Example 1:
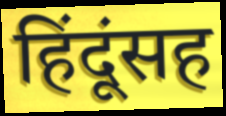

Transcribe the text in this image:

हिंदूंसह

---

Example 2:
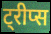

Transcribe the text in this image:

ट्रीप्स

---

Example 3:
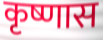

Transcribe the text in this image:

कृष्णास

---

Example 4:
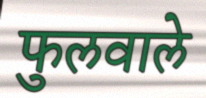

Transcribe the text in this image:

फुलवाले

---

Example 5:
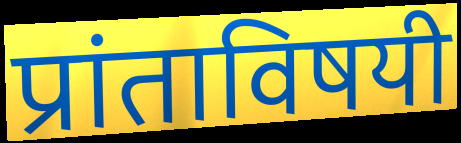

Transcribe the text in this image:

प्रांताविषयी